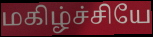
மகிழ்ச்சியே